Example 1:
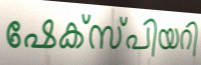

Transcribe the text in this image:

ഷേക്സ്പിയറി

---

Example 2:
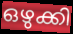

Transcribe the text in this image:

ഒഴുക്കി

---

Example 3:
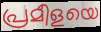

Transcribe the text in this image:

പ്രമീളയെ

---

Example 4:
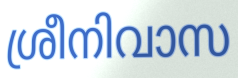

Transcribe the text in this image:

ശ്രീനിവാസ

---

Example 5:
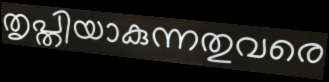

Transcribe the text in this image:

തൃപ്തിയാകുന്നതുവരെ